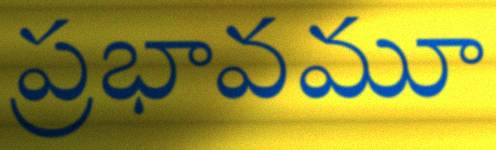
ప్రభావమూ